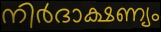
നിർദാക്ഷണ്യം